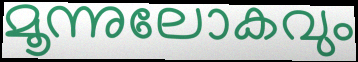
മൂന്നുലോകവും